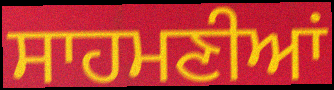
ਸਾਹਮਣੀਆਂ